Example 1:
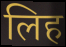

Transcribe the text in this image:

लिह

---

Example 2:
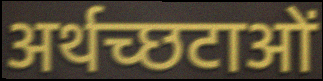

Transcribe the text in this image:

अर्थच्छटाओं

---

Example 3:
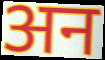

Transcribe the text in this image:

अन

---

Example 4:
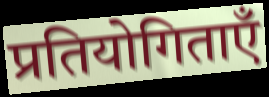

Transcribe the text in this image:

प्रतियोगिताएँ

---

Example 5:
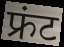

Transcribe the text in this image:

फ्रंट